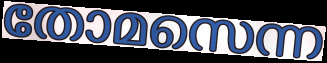
തോമസെന്ന